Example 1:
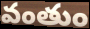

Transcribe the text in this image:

వంతుం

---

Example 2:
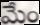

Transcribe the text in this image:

మేం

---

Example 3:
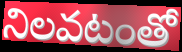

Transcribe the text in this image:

నిలవటంతో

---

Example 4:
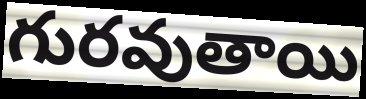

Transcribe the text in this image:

గురవుతాయి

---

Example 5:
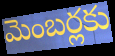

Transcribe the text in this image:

మెంబర్లకు